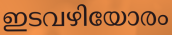
ഇടവഴിയോരം